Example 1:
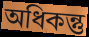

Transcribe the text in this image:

অধিকন্তু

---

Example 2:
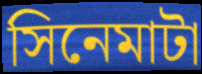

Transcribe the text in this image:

সিনেমাটা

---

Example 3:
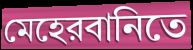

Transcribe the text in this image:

মেহেরবানিতে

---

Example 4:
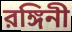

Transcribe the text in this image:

রঙ্গিনী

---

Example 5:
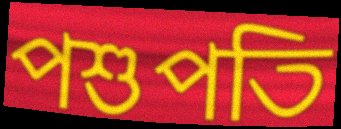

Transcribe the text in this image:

পশুপতি